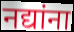
नद्यांना